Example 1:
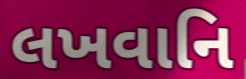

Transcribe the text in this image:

લખવાનિ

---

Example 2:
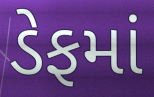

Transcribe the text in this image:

ડેફમાં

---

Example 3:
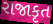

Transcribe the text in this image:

રાજાકૃત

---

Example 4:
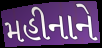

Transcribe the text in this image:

મહીનાને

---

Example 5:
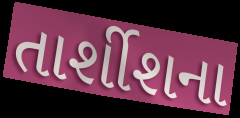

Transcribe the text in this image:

તાર્શીશના